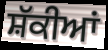
ਸ਼ੱਕੀਆਂ